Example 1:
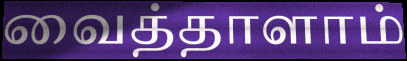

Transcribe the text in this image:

வைத்தாளாம்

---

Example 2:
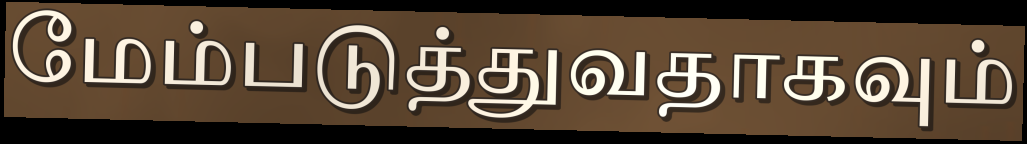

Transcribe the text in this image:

மேம்படுத்துவதாகவும்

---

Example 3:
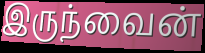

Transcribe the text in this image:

இருந்வைன்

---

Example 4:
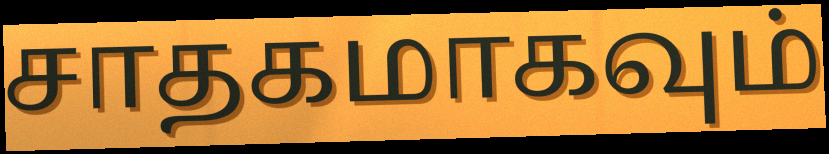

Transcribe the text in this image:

சாதகமாகவும்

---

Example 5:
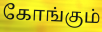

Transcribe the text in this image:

கோங்கும்